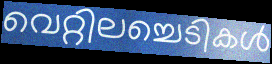
വെറ്റിലച്ചെടികൾ